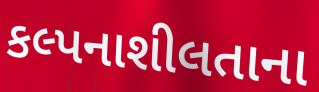
કલ્પનાશીલતાના